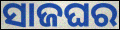
ସାଜଘର